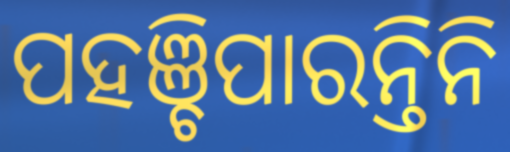
ପହଞ୍ଚିପାରନ୍ତିନି